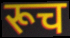
रूच